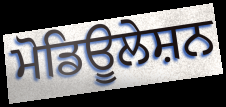
ਮੋਡਿਊਲੇਸ਼ਨ